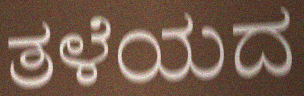
ತಳೆಯದ